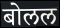
बोलल